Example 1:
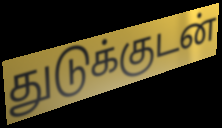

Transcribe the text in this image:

துடுக்குடன்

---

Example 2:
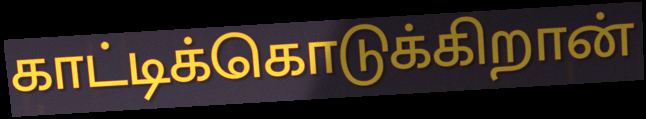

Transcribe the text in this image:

காட்டிக்கொடுக்கிறான்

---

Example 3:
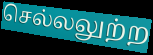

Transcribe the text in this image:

செல்லலுற்ற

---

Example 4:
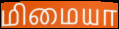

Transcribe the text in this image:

மிமையா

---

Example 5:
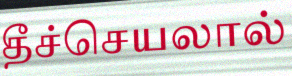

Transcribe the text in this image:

தீச்செயலால்